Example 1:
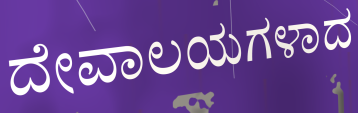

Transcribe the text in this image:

ದೇವಾಲಯಗಳಾದ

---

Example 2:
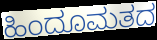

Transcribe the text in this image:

ಹಿಂದೂಮತದ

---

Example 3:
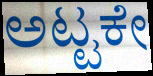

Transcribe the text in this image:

ಅಟ್ಟಕೇ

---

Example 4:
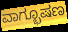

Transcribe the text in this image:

ವಾಗ್ಭೂಷಣ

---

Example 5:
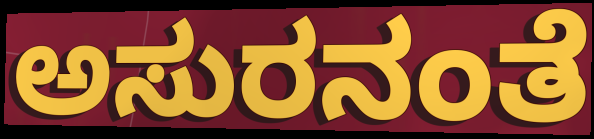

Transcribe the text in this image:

ಅಸುರನಂತೆ